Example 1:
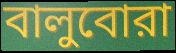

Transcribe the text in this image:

বালুবোরা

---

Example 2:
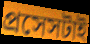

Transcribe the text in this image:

প্রসেসটাই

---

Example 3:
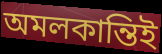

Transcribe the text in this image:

অমলকান্তিই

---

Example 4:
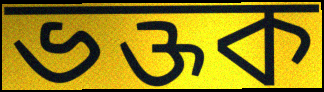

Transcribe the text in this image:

ভক্তক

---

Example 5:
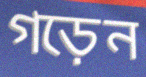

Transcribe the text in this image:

গড়েন